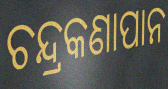
ଚନ୍ଦ୍ରକଣାପାନ